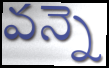
వన్నె